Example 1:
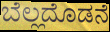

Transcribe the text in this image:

ಬೆಲ್ಲದೊಡನೆ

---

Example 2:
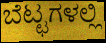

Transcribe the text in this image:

ಬೆಟ್ಟಗಳಲ್ಲಿ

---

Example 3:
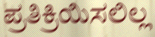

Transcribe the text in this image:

ಪ್ರತಿಕ್ರಿಯಿಸಲಿಲ್ಲ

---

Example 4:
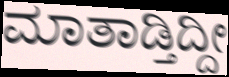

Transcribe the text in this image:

ಮಾತಾಡ್ತಿದ್ದೀ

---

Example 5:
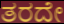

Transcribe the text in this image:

ತರದೇ